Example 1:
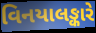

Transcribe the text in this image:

વિનયાલઙ્કારે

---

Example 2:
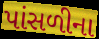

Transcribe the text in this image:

પાંસળીના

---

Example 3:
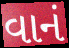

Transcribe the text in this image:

વાનં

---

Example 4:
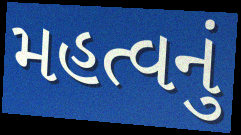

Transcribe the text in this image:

મહત્વનું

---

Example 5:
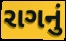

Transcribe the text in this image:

રાગનું